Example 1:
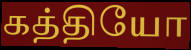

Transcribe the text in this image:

கத்தியோ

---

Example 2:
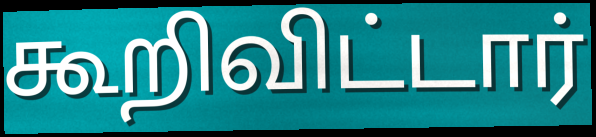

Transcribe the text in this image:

கூறிவிட்டார்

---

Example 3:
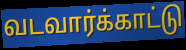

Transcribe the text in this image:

வடவார்க்காட்டு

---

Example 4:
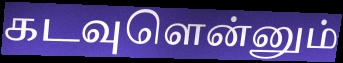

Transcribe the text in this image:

கடவுளென்னும்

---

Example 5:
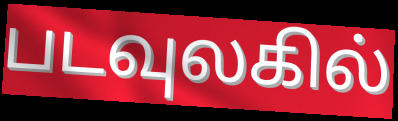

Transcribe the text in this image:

படவுலகில்